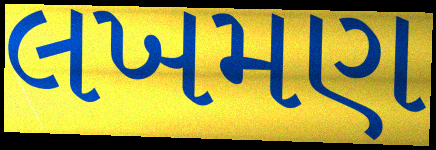
લખમણ